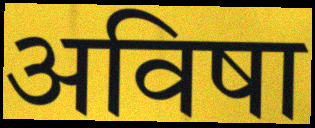
अविषा